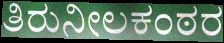
ತಿರುನೀಲಕಂಠರ